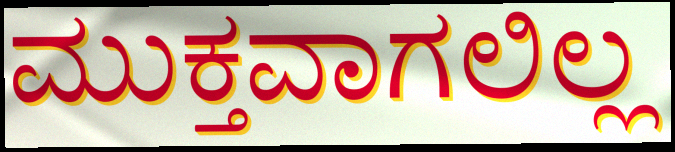
ಮುಕ್ತವಾಗಲಿಲ್ಲ